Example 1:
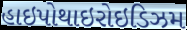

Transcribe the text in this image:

હાઇપોથાઇરોઇડિઝમ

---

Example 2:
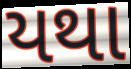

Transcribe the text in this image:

યથા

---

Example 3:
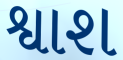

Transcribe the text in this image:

શ્વાશ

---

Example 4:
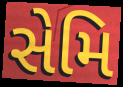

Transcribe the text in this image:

સેમિ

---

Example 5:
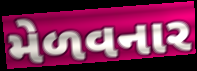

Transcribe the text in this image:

મેળવનાર